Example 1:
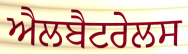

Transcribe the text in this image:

ਐਲਬੈਟਰੇਲਸ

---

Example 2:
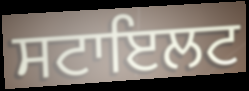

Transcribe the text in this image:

ਸਟਾਇਲਟ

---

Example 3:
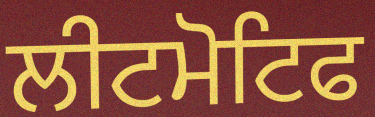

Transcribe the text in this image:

ਲੀਟਮੋਟਿਫ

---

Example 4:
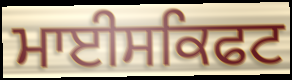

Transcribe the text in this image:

ਮਾਈਸਕਿਫਟ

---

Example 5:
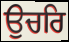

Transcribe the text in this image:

ਉਚਰਿ